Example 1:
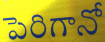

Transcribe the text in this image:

పెరిగానో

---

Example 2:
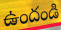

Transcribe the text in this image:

ఉందండి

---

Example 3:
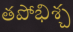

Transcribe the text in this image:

తపోభిశ్చ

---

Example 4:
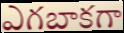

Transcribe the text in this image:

ఎగబాకగా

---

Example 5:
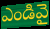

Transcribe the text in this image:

ఎండివై